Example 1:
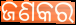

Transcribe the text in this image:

ଜଣକର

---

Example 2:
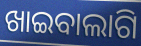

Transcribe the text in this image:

ଖାଇବାଲାଗି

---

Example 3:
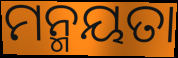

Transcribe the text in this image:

ମନ୍ମୟତା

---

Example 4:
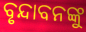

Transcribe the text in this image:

ବୃନ୍ଦାବନଙ୍କୁ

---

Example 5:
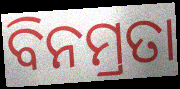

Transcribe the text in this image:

ବିନମ୍ରତା